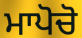
ਮਾਪੋਚੋ